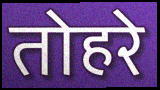
तोहरे